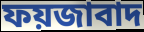
ফয়জাবাদ